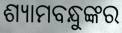
ଶ୍ୟାମବନ୍ଧୁଙ୍କର